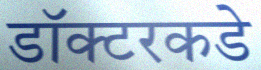
डॉक्टरकडे